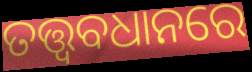
ତତ୍ତ୍ୱବଧାନରେ